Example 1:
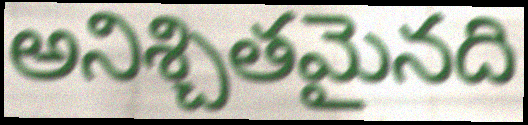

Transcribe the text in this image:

అనిశ్చితమైనది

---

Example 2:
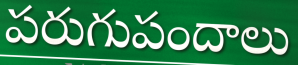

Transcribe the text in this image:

పరుగుపందాలు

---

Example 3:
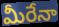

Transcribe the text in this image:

మీరేనా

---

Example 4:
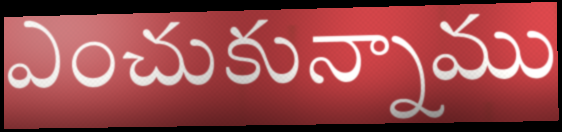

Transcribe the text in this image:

ఎంచుకున్నాము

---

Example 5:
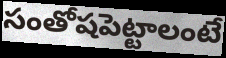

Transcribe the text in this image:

సంతోషపెట్టాలంటే